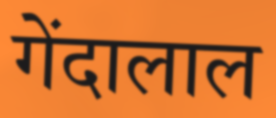
गेंदालाल